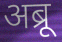
अब्रू